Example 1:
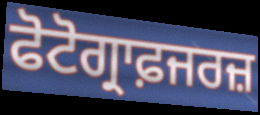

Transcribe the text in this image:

ਫੋਟੋਗ੍ਰਾਫ਼ਜਰਜ਼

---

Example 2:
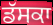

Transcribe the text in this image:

ਡੱਸਕਾ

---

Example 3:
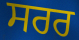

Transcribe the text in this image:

ਸਰਰ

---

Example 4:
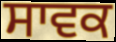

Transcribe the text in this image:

ਸਾਵਕ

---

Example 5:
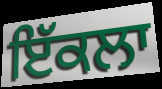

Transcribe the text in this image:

ਇੱਕਲਾ